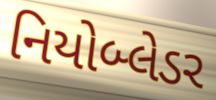
નિયોબ્લેડર